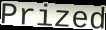
Prized